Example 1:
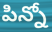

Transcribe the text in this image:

పిన్నో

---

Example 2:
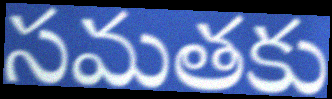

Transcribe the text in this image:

సమతకు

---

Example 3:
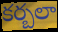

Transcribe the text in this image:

కర్బలా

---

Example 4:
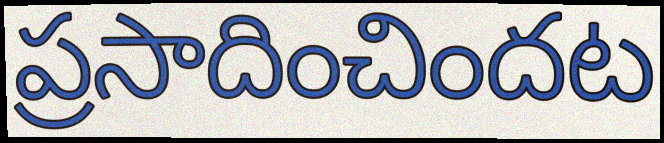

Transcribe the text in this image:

ప్రసాదించిందట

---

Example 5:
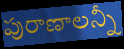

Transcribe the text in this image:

పురాణాలన్నీ